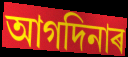
আগদিনাৰ